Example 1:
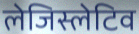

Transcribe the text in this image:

लेजिस्लेटिव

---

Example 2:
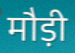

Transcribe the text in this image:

मौड़ी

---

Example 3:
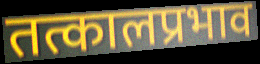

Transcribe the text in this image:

तत्कालप्रभाव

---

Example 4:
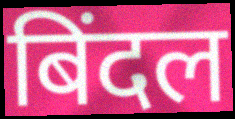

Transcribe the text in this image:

बिंदल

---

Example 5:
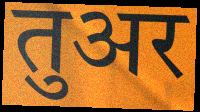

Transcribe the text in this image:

तुअर